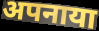
अपनाया